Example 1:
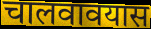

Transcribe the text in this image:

चालवावयास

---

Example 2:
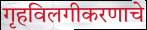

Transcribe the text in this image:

गृहविलगीकरणाचे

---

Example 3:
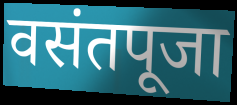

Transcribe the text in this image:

वसंतपूजा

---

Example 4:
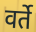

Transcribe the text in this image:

वर्ते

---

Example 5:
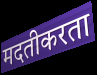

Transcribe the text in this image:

मदतीकरता